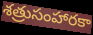
శత్రుసంహారకా